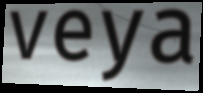
veya